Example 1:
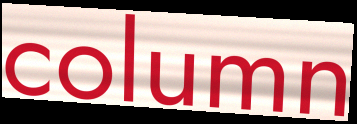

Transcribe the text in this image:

column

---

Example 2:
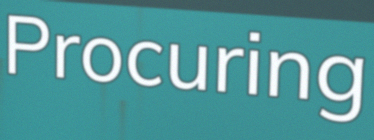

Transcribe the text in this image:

Procuring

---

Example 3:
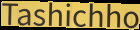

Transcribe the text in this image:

Tashichho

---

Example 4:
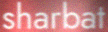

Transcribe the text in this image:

sharbat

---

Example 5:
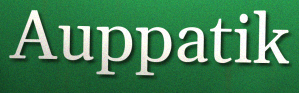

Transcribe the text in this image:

Auppatik